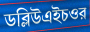
ডব্লিউএইচওর